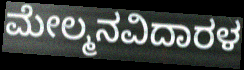
ಮೇಲ್ಮನವಿದಾರಳ